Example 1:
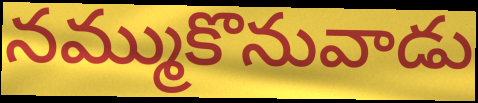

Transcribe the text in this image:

నమ్ముకొనువాడు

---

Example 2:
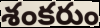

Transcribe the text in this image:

శంకరుం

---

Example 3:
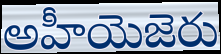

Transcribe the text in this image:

అహీయెజెరు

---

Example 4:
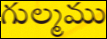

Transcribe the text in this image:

గుల్మము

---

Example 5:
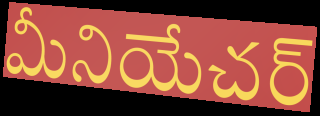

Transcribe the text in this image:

మీనియేచర్